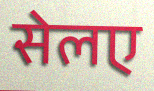
सेलए